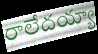
రాలేదయ్యా